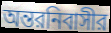
অন্তরনিবাসীর